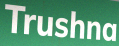
Trushna